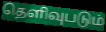
தெளிவுபடும்